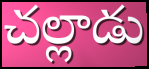
చల్లాడు